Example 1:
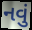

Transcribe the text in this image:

નવું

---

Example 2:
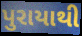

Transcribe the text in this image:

પુરાયાથી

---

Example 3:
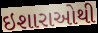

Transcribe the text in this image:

ઇશારાઓથી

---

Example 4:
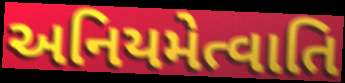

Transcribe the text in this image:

અનિયમેત્વાતિ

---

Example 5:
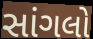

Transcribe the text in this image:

સાંગલો